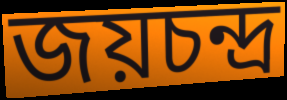
জয়চন্দ্র